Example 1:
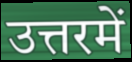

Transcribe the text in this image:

उत्तरमें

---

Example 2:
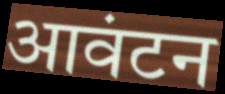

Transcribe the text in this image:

आवंटन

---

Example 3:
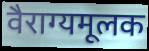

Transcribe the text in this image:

वैराग्यमूलक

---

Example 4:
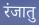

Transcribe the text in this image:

रंजातु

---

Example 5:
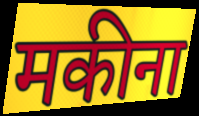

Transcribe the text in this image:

मकीना